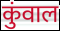
कुंवाल